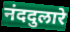
नंददुलारे